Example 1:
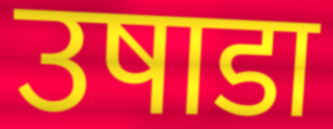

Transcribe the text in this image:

उषाडा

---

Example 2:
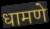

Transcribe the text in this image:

धामणे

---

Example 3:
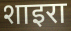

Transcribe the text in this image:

शाइरा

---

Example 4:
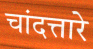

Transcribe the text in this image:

चांदत्तारे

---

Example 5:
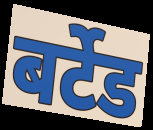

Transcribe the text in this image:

बर्टेड